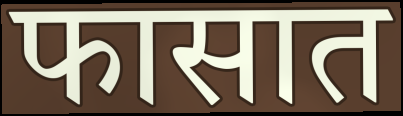
फासात